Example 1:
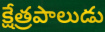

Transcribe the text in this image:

క్షేత్రపాలుడు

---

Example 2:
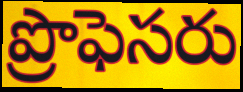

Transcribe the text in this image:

ప్రొఫెసరు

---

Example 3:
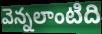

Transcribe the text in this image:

వెన్నలాంటిది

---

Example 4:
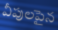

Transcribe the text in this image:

వీపులపైన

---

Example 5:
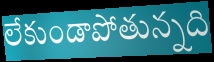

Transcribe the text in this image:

లేకుండాపోతున్నది